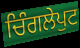
ਚਿੰਗਲੇਪੁਟ